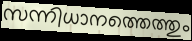
സന്നിധാനത്തെത്തും